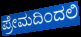
ಪ್ರೇಮದಿಂದಲಿ